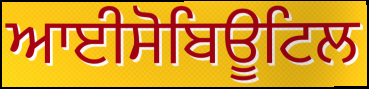
ਆਈਸੋਬਿਊਟਿਲ